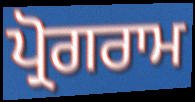
ਪ੍ਰ੍ਰੋਗਰਾਮ